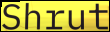
Shrut